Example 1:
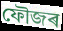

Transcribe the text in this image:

ফৌজৰ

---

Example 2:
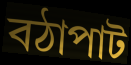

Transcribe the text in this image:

বঠাপাট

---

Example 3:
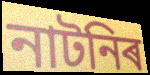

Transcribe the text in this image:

নাটনিৰ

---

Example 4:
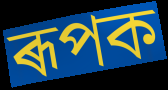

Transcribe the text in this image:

ৰূপক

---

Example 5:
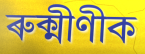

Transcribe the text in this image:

ৰুক্মীণীক